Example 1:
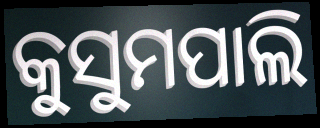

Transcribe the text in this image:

କୁସୁମପାଲି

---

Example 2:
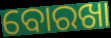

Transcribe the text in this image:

ବୋରଖା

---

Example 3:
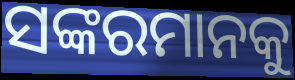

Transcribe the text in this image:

ସଙ୍କରମାନକୁ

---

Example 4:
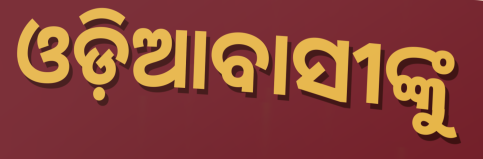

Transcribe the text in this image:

ଓଡ଼ିଆବାସୀଙ୍କୁ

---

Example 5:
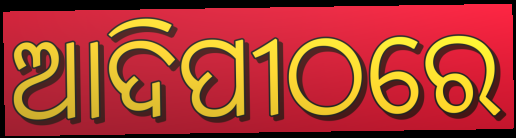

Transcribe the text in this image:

ଆଦିପୀଠରେ